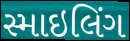
સ્માઇલિંગ